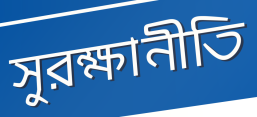
সুরক্ষানীতি